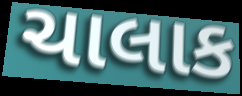
ચાલાક